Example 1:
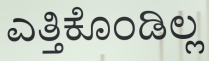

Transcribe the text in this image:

ಎತ್ತಿಕೊಂಡಿಲ್ಲ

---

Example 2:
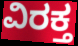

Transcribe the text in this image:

ವಿರಕ್ತ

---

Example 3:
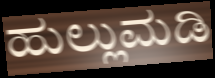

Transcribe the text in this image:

ಹುಲ್ಲುಮಡಿ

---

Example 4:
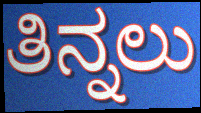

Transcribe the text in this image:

ತಿನ್ನಲು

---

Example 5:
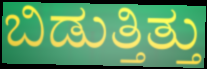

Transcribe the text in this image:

ಬಿಡುತ್ತಿತ್ತು